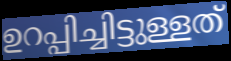
ഉറപ്പിച്ചിട്ടുള്ളത്